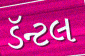
ડૅન્ટલ